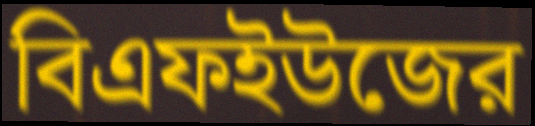
বিএফইউজের